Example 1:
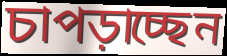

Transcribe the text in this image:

চাপড়াচ্ছেন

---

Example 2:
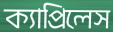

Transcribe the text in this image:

ক্যাপ্রিলেস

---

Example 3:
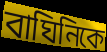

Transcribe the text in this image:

বাঘিনিকে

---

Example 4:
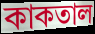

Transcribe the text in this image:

কাকতাল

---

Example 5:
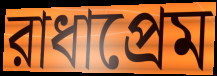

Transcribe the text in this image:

রাধাপ্রেম